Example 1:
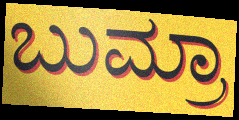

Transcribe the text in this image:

ಬುಮ್ರಾ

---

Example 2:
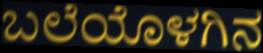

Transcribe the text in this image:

ಬಲೆಯೊಳಗಿನ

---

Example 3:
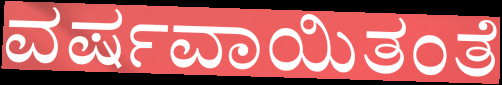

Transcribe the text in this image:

ವರ್ಷವಾಯಿತಂತೆ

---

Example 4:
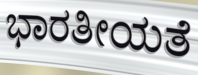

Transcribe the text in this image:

ಭಾರತೀಯತೆ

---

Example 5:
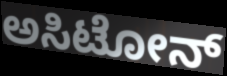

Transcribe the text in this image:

ಅಸಿಟೋನ್